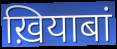
ख़ियाबां